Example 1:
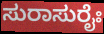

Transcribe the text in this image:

ಸುರಾಸುರೈಃ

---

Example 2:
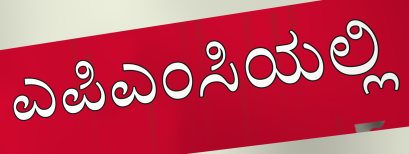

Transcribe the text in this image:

ಎಪಿಎಂಸಿಯಲ್ಲಿ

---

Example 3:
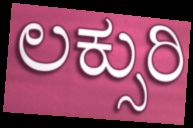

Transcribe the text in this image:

ಲಕ್ಸುರಿ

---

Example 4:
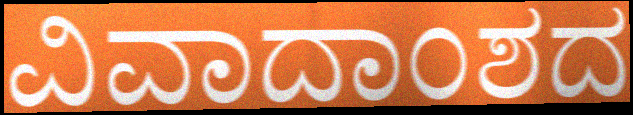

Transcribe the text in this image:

ವಿವಾದಾಂಶದ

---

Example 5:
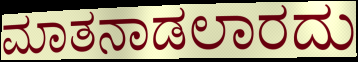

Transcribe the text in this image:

ಮಾತನಾಡಲಾರದು